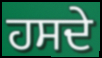
ਹਸਦੇ